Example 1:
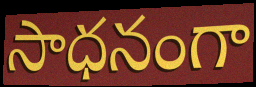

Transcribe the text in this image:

సాధనంగా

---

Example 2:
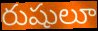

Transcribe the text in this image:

రుషులూ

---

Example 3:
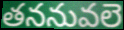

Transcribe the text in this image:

తననువలె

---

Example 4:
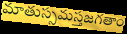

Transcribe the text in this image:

మాతుస్సమస్తజగతాం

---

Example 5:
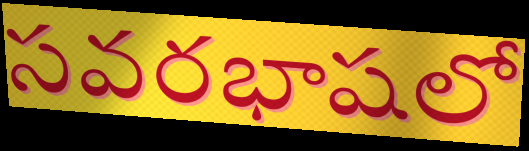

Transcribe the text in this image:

సవరభాషలో